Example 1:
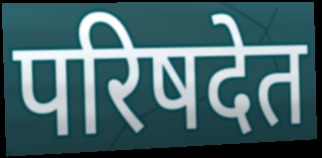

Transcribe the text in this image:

परिषदेत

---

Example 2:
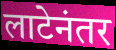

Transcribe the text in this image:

लाटेनंतर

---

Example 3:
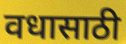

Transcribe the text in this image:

वधासाठी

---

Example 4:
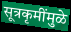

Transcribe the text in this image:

सूत्रकृमींमुळे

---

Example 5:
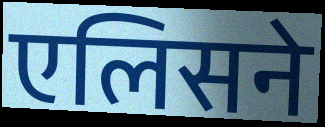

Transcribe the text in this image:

एलिसने